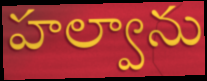
హల్వాను